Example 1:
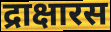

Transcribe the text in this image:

द्राक्षारस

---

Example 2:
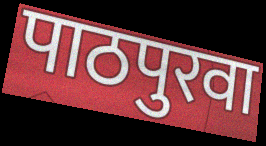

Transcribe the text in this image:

पाठपुरवा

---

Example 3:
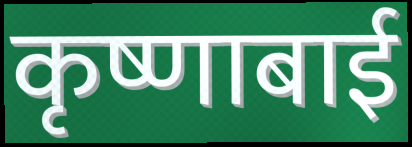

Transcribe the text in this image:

कृष्णाबाई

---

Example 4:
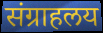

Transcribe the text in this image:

संग्राहलय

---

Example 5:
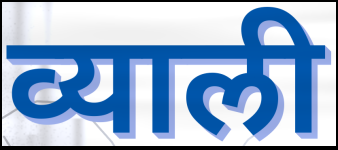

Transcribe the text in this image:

व्याली